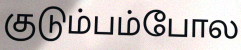
குடும்பம்போல